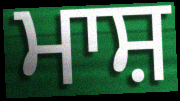
ਮਾਸ਼